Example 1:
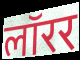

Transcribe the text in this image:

लॉरर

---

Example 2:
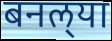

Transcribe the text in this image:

बनल्या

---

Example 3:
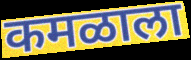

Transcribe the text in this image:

कमळाला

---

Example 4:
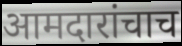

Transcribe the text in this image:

आमदारांचाच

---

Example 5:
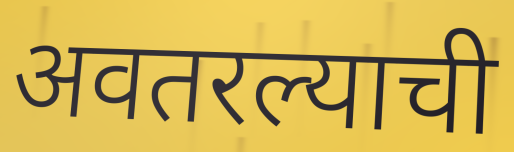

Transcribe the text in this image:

अवतरल्याची